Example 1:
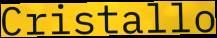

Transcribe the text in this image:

Cristallo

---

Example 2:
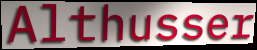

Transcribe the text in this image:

Althusser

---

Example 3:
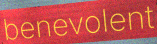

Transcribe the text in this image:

benevolent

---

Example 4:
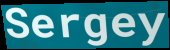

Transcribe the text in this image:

Sergey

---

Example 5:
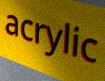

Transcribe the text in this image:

acrylic